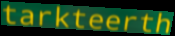
tarkteerth